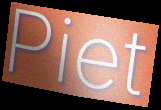
Piet